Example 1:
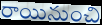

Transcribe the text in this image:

రాయినుంచి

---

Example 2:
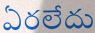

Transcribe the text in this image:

ఏరలేదు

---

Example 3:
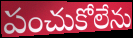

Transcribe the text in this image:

పంచుకోలేను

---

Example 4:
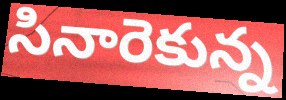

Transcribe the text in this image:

సినారెకున్న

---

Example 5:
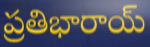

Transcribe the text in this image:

ప్రతిభారాయ్